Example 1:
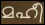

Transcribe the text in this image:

മഹീ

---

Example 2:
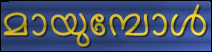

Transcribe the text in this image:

മായുമ്പോൾ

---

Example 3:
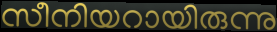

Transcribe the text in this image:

സീനിയറായിരുന്നു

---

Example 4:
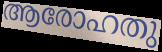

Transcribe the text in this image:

ആരോഹതു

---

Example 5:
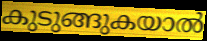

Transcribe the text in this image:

കുടുങ്ങുകയാൽ